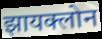
झायक्लोन